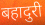
बहादुरी